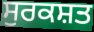
ਸੁਰਕਸ਼ਤ